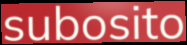
subosito